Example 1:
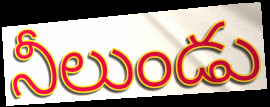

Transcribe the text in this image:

నీలుండు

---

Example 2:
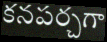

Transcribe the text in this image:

కనపర్చగా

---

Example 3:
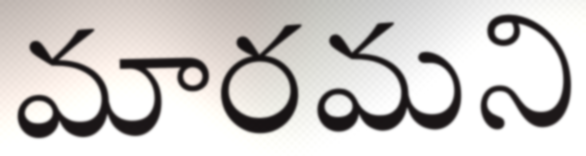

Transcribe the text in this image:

మారమని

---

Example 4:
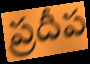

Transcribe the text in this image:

ప్రదీప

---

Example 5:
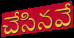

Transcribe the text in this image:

చేసినవే